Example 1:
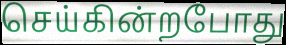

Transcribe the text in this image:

செய்கின்றபோது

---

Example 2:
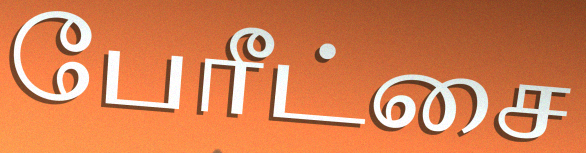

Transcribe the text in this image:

பேரீட்சை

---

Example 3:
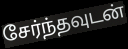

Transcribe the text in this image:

சேர்ந்தவுடன்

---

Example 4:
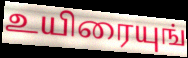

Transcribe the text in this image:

உயிரையுங்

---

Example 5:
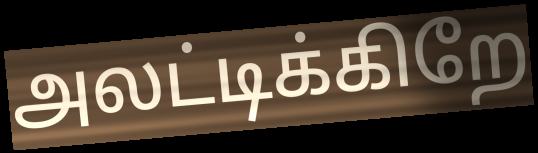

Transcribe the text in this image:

அலட்டிக்கிறே